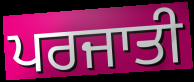
ਪਰਜਾਤੀ